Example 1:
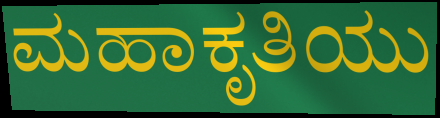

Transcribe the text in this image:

ಮಹಾಕೃತಿಯು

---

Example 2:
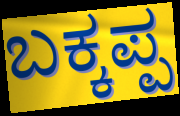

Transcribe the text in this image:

ಬಕ್ಕಪ್ಪ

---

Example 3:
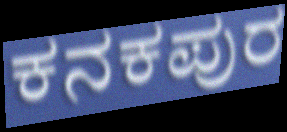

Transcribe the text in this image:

ಕನಕಪುರ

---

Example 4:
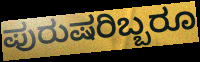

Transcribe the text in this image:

ಪುರುಷರಿಬ್ಬರೂ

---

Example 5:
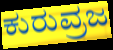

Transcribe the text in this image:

ಕುರುವ್ರಜ